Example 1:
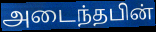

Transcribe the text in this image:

அடைந்தபின்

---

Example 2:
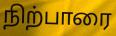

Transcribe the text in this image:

நிற்பாரை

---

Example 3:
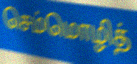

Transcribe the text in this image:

செம்மொழித்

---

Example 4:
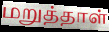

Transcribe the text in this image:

மறுத்தாள்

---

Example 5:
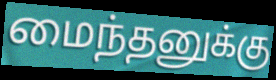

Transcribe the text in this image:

மைந்தனுக்கு